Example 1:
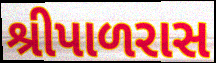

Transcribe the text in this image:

શ્રીપાળરાસ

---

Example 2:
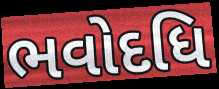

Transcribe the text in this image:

ભવોદધિ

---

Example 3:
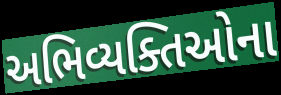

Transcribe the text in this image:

અભિવ્યક્તિઓના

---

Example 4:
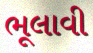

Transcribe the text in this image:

ભૂલાવી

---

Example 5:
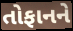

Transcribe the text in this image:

તોફાનને